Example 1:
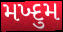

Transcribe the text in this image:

મખ્દુમ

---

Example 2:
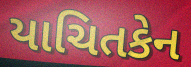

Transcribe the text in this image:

યાચિતકેન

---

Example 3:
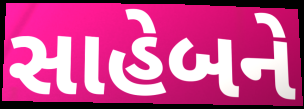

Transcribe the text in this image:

સાહેબને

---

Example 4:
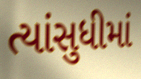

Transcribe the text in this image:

ત્યાંસુધીમાં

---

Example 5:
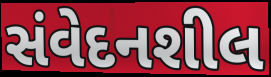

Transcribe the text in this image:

સંવેદનશીલ